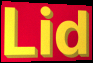
Lid